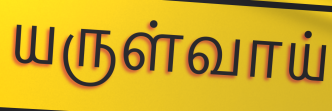
யருள்வாய்